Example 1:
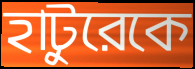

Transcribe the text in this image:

হাটুরেকে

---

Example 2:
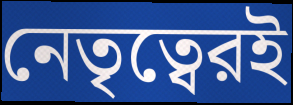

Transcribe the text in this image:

নেতৃত্বেরই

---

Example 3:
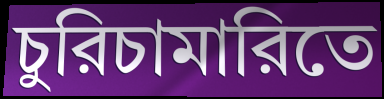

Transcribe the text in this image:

চুরিচামারিতে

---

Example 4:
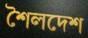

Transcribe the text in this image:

শৈলদেশ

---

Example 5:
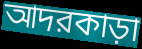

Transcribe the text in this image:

আদরকাড়া